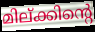
മില്ക്കിന്റെ